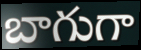
బాగుగా